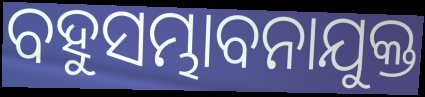
ବହୁସମ୍ଭାବନାଯୁକ୍ତ